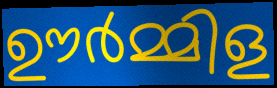
ഊർമ്മിള